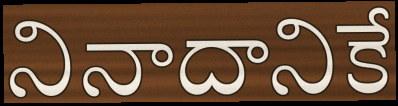
నినాదానికే